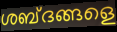
ശബ്ദങ്ങളെ